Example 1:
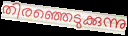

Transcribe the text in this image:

തിരഞ്ഞെടുക്കുന്നു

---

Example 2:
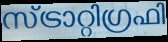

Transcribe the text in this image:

സ്ട്രാറ്റിഗ്രഫി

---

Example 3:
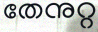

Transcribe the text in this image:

തേനുറ്റ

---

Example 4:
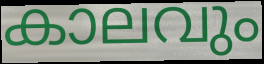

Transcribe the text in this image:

കാലവും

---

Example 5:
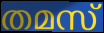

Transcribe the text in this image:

തമസ്